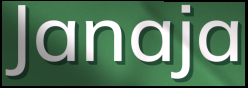
Janaja